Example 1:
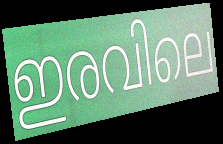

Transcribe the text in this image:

ഇരവിലെ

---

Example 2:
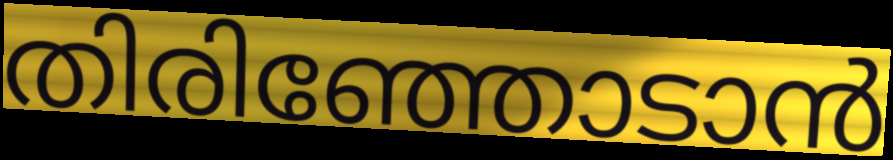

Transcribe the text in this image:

തിരിഞ്ഞോടാൻ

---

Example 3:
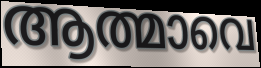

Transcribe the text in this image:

ആത്മാവെ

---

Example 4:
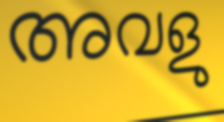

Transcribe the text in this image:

അവളു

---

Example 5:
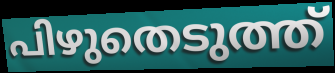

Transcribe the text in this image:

പിഴുതെടുത്ത്